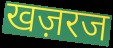
खज़रज